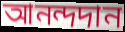
আনন্দদান